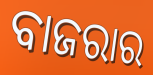
ବାଜରାର